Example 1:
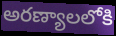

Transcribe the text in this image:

అరణ్యాలలోకి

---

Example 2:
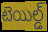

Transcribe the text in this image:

టెయిల్డ్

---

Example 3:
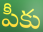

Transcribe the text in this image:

పీకు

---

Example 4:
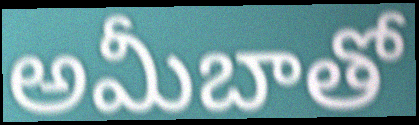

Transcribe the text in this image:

అమీబాతో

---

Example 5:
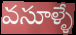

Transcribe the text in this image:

వసూళ్ళే